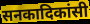
सनकादिकांसी